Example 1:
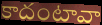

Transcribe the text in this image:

కాదంటావా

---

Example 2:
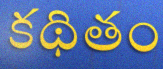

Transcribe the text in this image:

కథితం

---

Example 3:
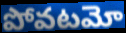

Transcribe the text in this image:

పోవటమో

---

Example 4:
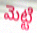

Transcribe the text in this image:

మెట్టి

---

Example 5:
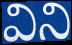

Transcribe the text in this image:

విని